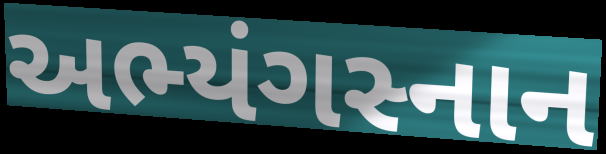
અભ્યંગસ્નાન